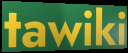
tawiki